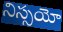
నిస్సయో